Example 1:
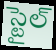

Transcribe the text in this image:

స్టైల్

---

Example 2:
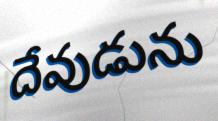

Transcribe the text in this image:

దేవుడును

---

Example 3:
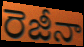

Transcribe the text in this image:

రెజీనా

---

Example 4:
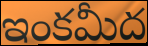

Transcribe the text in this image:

ఇంకమీద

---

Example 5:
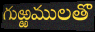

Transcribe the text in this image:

గుఱ్ఱములతొ